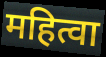
महित्वा